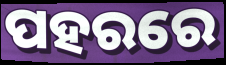
ପହରରେ